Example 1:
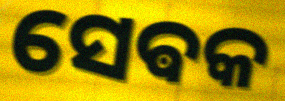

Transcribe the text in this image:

ସେଵକ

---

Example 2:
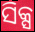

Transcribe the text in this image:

ସିକ୍ସ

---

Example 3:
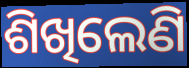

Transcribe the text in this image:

ଶିଖିଲେଣି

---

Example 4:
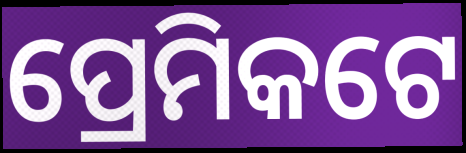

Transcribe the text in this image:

ପ୍ରେମିକଟେ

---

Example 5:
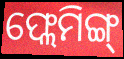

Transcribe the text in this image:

ଫ୍ଲେମିଙ୍ଗ୍